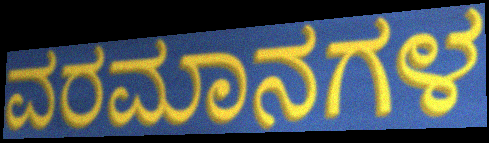
ವರಮಾನಗಳ